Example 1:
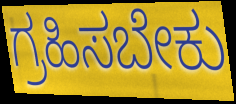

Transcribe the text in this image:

ಗ್ರಹಿಸಬೇಕು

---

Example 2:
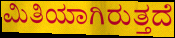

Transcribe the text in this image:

ಮಿತಿಯಾಗಿರುತ್ತದೆ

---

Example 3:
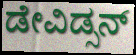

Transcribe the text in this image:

ಡೇವಿಡ್ಸನ್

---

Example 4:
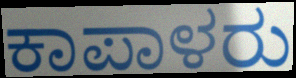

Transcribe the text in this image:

ಕಾಪಾಳರು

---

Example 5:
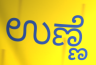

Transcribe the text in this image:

ಉಣ್ಣೆ